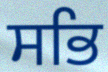
ਸਭਿ